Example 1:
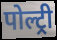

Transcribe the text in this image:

पोल्ट्री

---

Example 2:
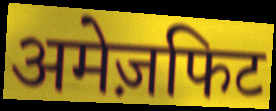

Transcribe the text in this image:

अमेज़फिट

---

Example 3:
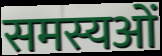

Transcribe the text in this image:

समस्यओं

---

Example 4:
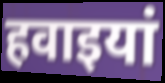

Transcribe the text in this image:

हवाइयां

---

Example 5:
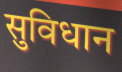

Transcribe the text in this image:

सुविधान